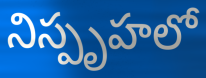
నిస్పృహలో